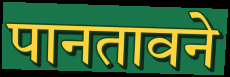
पानतावने